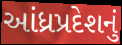
આંધ્રપ્રદેશનું